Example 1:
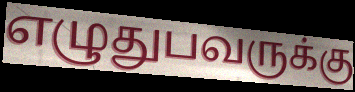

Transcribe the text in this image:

எழுதுபவருக்கு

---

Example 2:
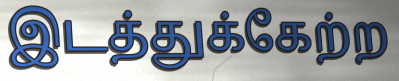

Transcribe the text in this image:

இடத்துக்கேற்ற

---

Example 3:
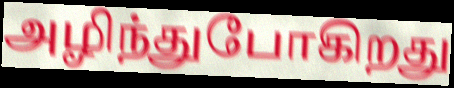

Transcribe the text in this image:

அழிந்துபோகிறது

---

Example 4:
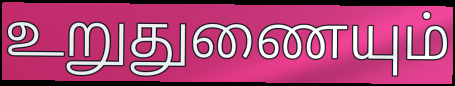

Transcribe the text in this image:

உறுதுணையும்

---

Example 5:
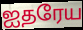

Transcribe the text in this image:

ஐதரேய